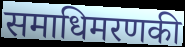
समाधिमरणकी